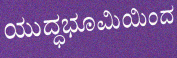
ಯುದ್ಧಭೂಮಿಯಿಂದ